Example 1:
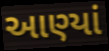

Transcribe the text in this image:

આણ્યાં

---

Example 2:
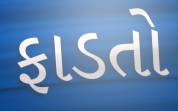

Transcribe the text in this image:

ફાડતો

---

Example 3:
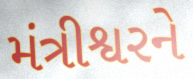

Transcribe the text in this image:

મંત્રીશ્વરને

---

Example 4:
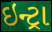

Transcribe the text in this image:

ઇન્ટ્રા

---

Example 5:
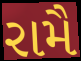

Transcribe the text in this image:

રામૈ